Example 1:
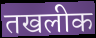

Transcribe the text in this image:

तखलीक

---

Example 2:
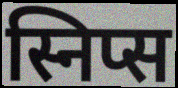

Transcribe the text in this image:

स्निप्स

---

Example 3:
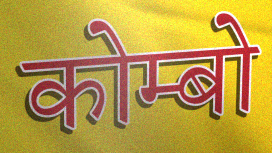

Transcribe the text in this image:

कोम्बो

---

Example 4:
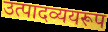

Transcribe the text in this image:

उत्पादव्ययरूप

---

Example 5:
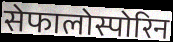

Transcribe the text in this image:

सेफालोस्पोरिन